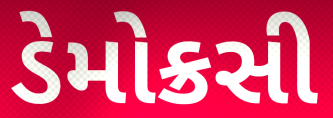
ડેમોક્રસી